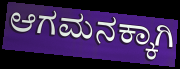
ಆಗಮನಕ್ಕಾಗಿ